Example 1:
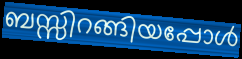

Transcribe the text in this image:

ബസ്സിറങ്ങിയപ്പോൾ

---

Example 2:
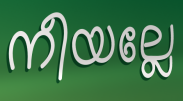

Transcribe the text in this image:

നീയല്ലേ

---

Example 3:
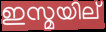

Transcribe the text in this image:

ഇസ്മയില്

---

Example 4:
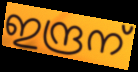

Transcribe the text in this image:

ഇന്ദ്രന്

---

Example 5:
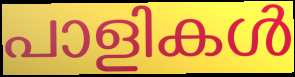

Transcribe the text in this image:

പാളികൾ